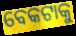
ବେକଟାକୁ